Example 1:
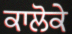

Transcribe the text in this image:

ਕਾਲੋਕੇ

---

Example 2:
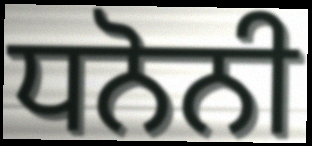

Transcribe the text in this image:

ਧਨੋਨੀ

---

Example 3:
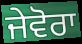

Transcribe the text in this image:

ਜੇਵੋਰਾ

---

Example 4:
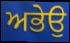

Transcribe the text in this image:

ਅਭੇਉ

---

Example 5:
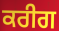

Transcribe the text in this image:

ਕਰੀਗ